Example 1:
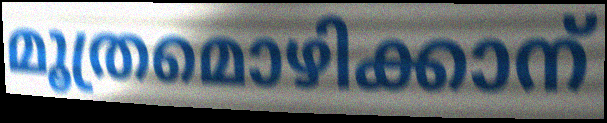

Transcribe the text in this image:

മൂത്രമൊഴിക്കാന്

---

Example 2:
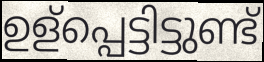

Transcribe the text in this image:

ഉള്പ്പെട്ടിട്ടുണ്ട്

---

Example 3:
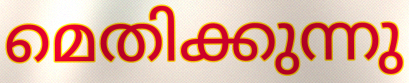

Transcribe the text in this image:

മെതിക്കുന്നു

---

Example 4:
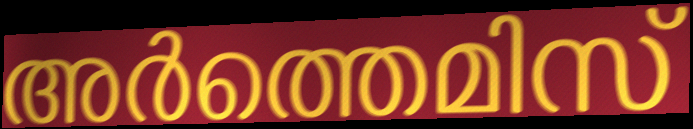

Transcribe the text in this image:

അർത്തെമിസ്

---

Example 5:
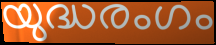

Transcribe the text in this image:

യുദ്ധരംഗം